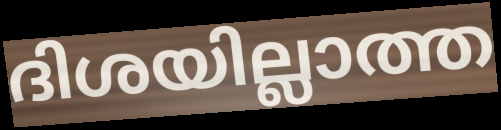
ദിശയില്ലാത്ത